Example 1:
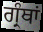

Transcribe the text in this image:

ਗ੍ਰੰਥਾਂ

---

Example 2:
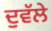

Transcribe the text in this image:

ਦੁਵੱਲੇ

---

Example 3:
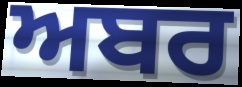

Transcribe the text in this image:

ਅਬਰ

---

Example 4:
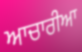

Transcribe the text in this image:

ਆਚਾਰੀਆ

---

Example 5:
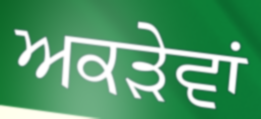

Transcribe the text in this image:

ਅਕੜੇਵਾਂ